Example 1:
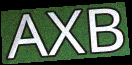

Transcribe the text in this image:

AXB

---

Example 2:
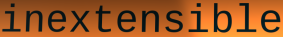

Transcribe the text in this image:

inextensible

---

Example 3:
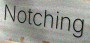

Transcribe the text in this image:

Notching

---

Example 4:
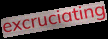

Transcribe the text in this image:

excruciating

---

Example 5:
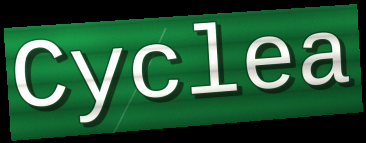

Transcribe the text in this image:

Cyclea